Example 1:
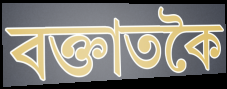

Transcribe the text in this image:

বক্তাতকৈ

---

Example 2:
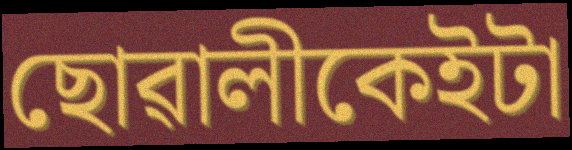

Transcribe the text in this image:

ছোৱালীকেইটা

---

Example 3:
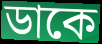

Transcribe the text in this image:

ডাকে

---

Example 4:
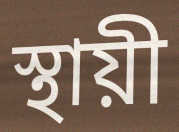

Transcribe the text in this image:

স্থায়ী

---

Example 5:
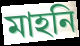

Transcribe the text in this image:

মাহনি